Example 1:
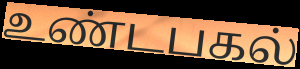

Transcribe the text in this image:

உண்டபகல்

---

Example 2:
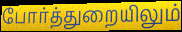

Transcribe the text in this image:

போர்த்துறையிலும்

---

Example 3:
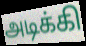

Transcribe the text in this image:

அடிக்கி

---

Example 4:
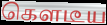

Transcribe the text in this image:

கௌடீய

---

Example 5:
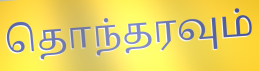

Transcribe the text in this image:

தொந்தரவும்